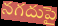
నగదుపై